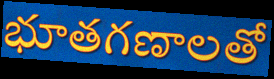
భూతగణాలతో